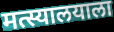
मत्स्यालयाला